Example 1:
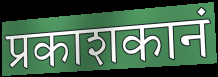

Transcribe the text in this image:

प्रकाशकानं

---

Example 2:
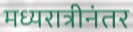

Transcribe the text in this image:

मध्यरात्रीनंतर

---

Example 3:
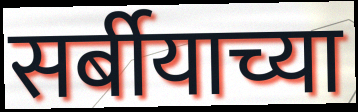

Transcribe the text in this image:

सर्बीयाच्या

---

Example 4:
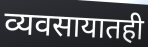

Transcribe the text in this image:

व्यवसायातही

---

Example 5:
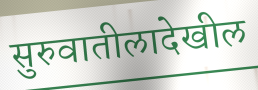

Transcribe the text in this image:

सुरुवातीलादेखील